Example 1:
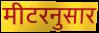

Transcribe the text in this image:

मीटरनुसार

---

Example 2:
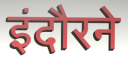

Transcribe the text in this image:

इंदौरने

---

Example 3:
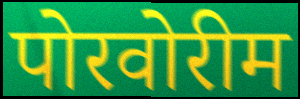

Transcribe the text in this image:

पोरवोरीम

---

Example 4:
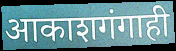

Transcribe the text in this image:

आकाशगंगाही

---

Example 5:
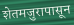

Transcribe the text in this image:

शेतमजुरापासून